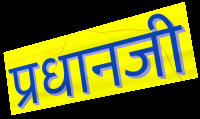
प्रधानजी